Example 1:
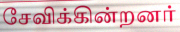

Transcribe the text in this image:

சேவிக்கின்றனர்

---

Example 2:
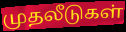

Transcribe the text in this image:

முதலீடுகள்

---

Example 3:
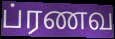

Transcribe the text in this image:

ப்ரணவ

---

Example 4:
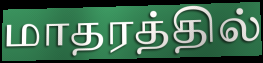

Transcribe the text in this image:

மாதரத்தில்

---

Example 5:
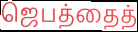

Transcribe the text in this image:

ஜெபத்தைத்